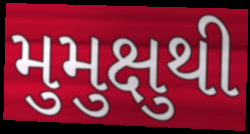
મુમુક્ષુથી